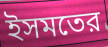
ইসমতের